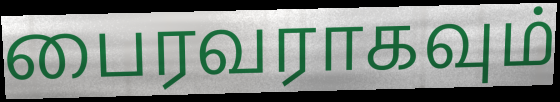
பைரவராகவும்